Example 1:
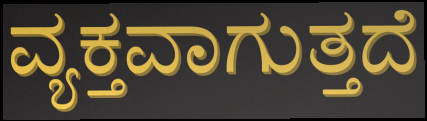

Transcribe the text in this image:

ವ್ಯಕ್ತವಾಗುತ್ತದೆ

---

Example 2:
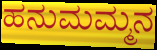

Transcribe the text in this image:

ಹನುಮಮ್ಮನ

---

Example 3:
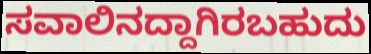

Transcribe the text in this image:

ಸವಾಲಿನದ್ದಾಗಿರಬಹುದು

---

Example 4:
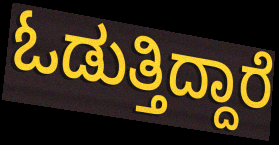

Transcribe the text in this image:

ಓಡುತ್ತಿದ್ದಾರೆ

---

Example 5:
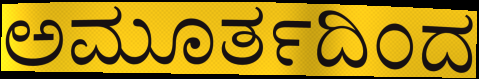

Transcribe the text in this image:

ಅಮೂರ್ತದಿಂದ